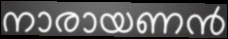
നാരായണൻ